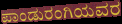
ಪಾಂಡುರಂಗಿಯವರ